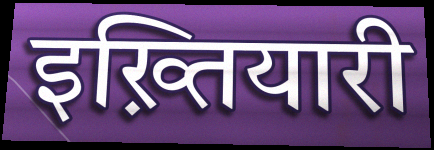
इख़्तियारी